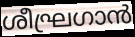
ശീഘ്രഗാൻ